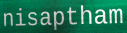
nisaptham